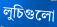
লুচিগুলো